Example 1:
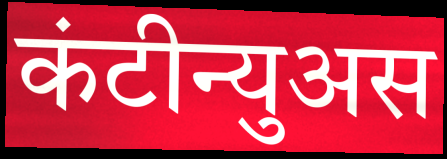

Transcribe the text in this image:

कंटीन्युअस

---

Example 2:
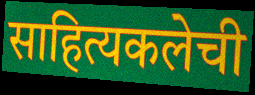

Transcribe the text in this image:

साहित्यकलेची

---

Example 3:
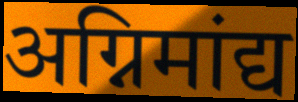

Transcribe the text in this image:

अग्निमांद्य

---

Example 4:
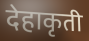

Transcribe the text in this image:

देहाकृती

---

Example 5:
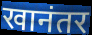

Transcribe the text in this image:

खानंतर